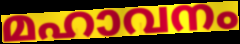
മഹാവനം